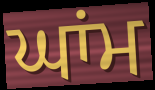
ਘਾਂਮ